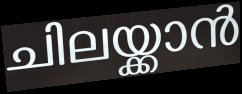
ചിലയ്ക്കാൻ